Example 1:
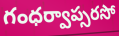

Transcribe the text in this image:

గంధర్వాప్సరసో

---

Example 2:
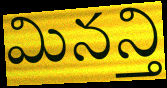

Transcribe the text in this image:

మినన్తి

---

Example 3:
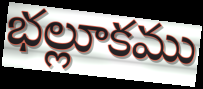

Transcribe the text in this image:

భల్లూకము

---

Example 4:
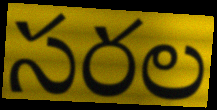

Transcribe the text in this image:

సరల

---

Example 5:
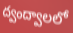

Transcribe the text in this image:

ద్వంద్వాలలో